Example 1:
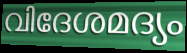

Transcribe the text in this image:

വിദേശമദ്യം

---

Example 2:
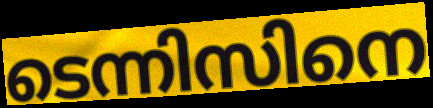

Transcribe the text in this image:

ടെന്നിസിനെ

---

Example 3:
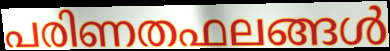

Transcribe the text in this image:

പരിണതഫലങ്ങൾ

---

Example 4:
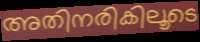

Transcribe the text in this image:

അതിനരികിലൂടെ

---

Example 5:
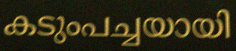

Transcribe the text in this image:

കടുംപച്ചയായി